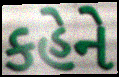
કહેને